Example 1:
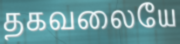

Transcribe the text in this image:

தகவலையே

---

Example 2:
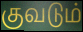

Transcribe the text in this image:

குவடும்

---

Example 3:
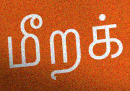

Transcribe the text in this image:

மீறக்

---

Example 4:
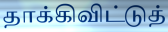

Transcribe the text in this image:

தாக்கிவிட்டுத்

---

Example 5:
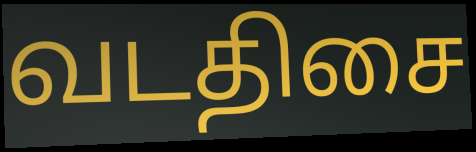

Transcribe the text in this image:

வடதிசை